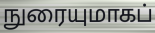
நுரையுமாகப்